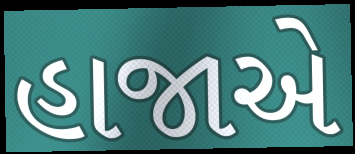
હાજાએ